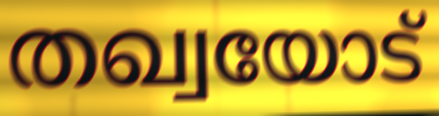
തഖ്വയോട്